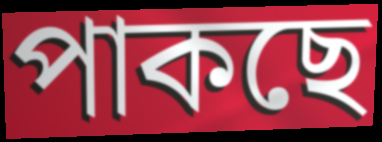
পাকছে